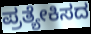
ಪ್ರತ್ಯೇಕಿಸದ